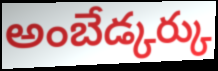
అంబేడ్కర్కు